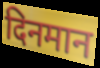
दिनमान